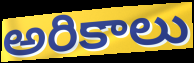
అరికాలు